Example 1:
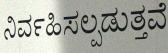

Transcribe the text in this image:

ನಿರ್ವಹಿಸಲ್ಪಡುತ್ತವೆ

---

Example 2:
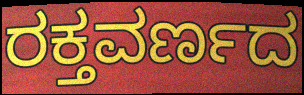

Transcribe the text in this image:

ರಕ್ತವರ್ಣದ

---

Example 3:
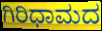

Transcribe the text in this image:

ಗಿರಿಧಾಮದ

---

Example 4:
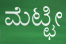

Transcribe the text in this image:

ಮೆಟ್ಟೀ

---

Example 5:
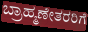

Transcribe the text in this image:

ಬ್ರಾಹ್ಮಣೇತರರಿಗೆ